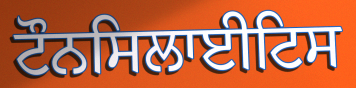
ਟੌਨਸਿਲਾਈਟਿਸ